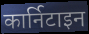
कार्निटाइन